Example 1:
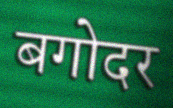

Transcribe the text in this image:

बगोदर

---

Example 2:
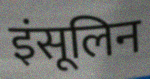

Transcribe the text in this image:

इंसूलिन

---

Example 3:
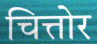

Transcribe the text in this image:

चित्तोर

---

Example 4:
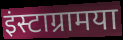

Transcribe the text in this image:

इंस्टाग्रामया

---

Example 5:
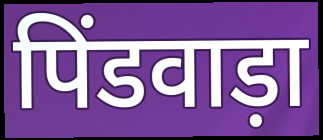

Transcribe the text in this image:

पिंडवाड़ा